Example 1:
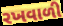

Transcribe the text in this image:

રખવાળી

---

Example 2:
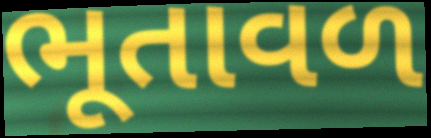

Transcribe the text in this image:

ભૂતાવળ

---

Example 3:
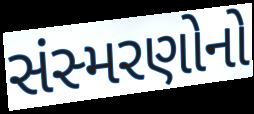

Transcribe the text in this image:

સંસ્મરણોનો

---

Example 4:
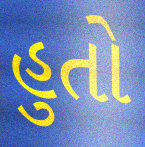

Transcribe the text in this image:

હુતો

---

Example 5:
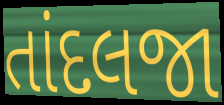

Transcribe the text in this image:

તાંદલજા